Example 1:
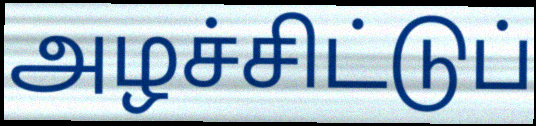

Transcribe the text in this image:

அழச்சிட்டுப்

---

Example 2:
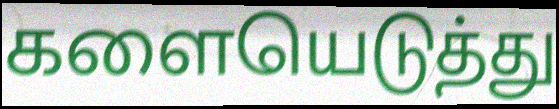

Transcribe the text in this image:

களையெடுத்து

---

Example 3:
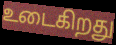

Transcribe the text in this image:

உடைகிறது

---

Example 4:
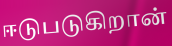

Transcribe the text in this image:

ஈடுபடுகிறான்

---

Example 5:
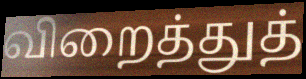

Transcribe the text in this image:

விறைத்துத்